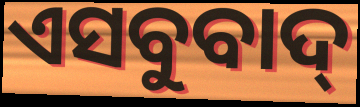
ଏସବୁବାଦ୍